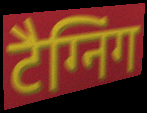
टैग्निंग